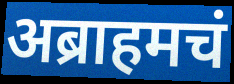
अब्राहमचं